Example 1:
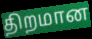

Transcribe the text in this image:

திறமான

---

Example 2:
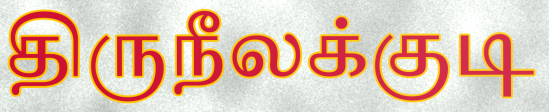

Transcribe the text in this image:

திருநீலக்குடி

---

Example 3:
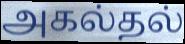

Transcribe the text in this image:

அகல்தல்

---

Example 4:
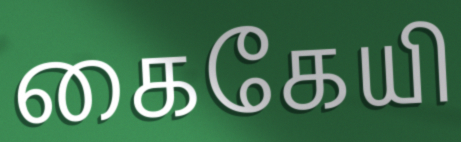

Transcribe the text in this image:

கைகேயி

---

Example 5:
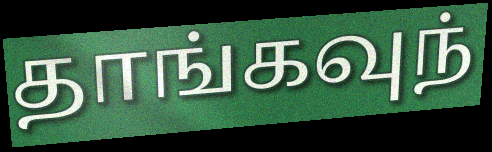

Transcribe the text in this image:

தாங்கவுந்